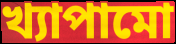
খ্যাপামো